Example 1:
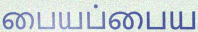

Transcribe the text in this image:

பையப்பைய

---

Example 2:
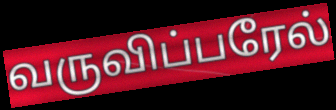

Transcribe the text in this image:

வருவிப்பரேல்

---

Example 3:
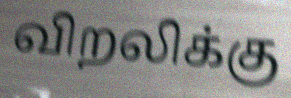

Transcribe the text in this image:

விறலிக்கு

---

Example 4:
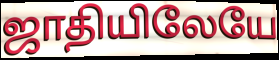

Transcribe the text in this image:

ஜாதியிலேயே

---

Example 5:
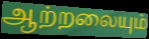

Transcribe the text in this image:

ஆற்றலையும்